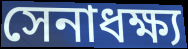
সেনাধক্ষ্য